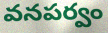
వనపర్వం